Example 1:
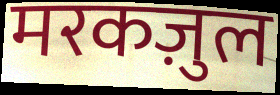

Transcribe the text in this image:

मरकज़ुल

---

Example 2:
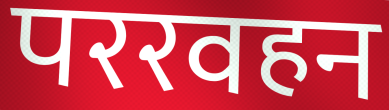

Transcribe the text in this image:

पररवहन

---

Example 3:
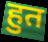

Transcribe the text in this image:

हुत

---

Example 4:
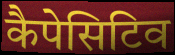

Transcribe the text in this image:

कैपेसिटिव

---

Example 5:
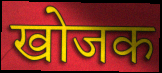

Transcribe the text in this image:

खोजक